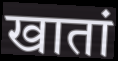
खातां